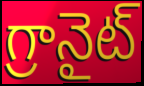
గ్రానైట్